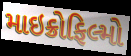
માઇક્રોફિલ્મો